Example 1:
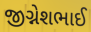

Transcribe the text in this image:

જીગ્નેશભાઈ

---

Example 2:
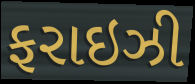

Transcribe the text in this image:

ફરાઇઝી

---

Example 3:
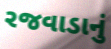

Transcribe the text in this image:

રજવાડાનું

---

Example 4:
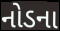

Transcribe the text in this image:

નોડના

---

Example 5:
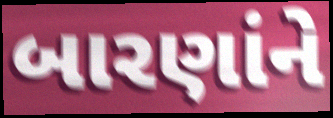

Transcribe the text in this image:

બારણાંને